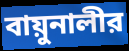
বায়ুনালীর